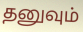
தனுவும்